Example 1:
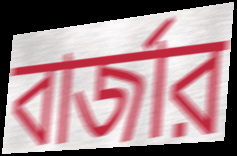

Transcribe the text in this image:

বার্জার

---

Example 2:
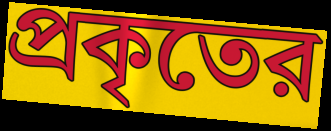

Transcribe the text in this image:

প্রকৃতের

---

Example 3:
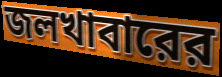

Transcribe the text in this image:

জলখাবারের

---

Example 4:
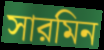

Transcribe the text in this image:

সারমিন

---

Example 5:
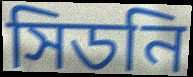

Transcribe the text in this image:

সিডনি